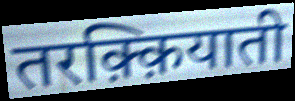
तरक़्क़ियाती